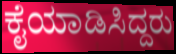
ಕೈಯಾಡಿಸಿದ್ದರು